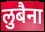
लुबैना